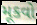
મૂકવો